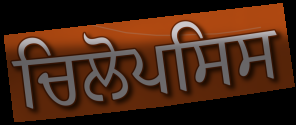
ਚਿਲੋਪਸਿਸ